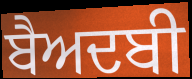
ਬੈਅਦਬੀ